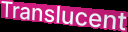
Translucent